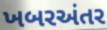
ખબરઅંતર